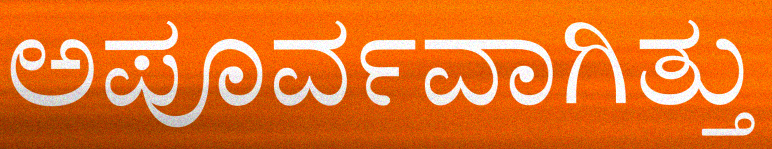
ಅಪೂರ್ವವಾಗಿತ್ತು